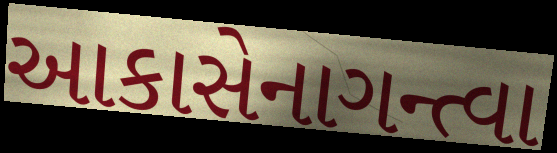
આકાસેનાગન્ત્વા